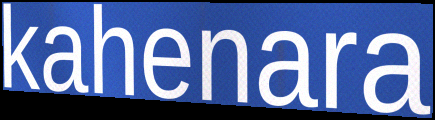
kahenara